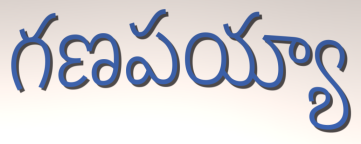
గణపయ్యా